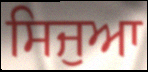
ਸਿਜੁਆ